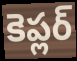
కెప్లర్